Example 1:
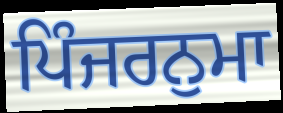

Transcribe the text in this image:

ਪਿੰਜਰਨੁਮਾ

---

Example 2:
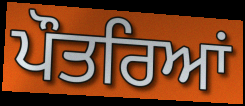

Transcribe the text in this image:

ਪੌਤਰਿਆਂ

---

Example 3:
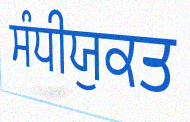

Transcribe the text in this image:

ਸੰਧੀਯੁਕਤ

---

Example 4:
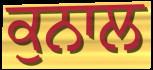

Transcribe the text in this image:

ਕੁਨਾਲ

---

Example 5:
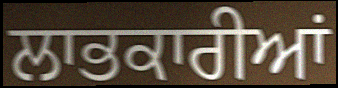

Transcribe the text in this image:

ਲਾਭਕਾਰੀਆਂ